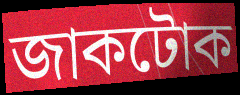
জাকটোক